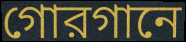
গোরগানে